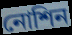
নোশিন